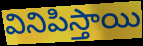
వినిపిస్తాయి